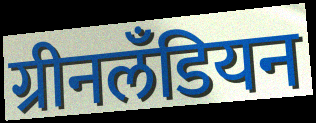
ग्रीनलॅंडियन